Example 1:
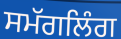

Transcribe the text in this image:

ਸਮੱਗਲਿੰਗ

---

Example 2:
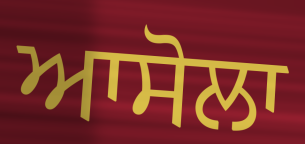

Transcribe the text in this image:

ਆਸੋਲਾ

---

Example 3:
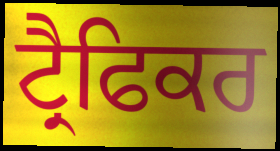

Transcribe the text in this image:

ਟ੍ਰੈਫਿਕਰ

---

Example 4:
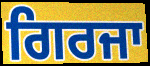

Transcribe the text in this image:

ਗਿਰਜਾ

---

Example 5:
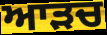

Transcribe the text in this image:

ਆੜਚ